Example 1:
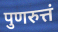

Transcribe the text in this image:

पुणरुत्तं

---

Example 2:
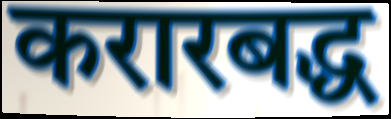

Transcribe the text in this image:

करारबद्ध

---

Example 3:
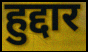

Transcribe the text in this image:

हुद्दार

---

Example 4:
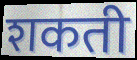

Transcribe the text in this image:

शकती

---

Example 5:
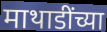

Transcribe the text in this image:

माथाडींच्या